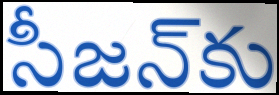
సీజన్‌కు